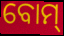
ବୋମ୍